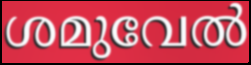
ശമുവേൽ